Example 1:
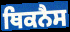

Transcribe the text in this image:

ਥਿਕਨੈਸ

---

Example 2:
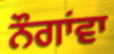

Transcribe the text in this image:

ਨੌਗਾਂਵਾ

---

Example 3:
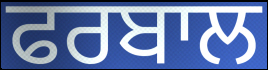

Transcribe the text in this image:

ਫਰਬਾਲ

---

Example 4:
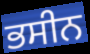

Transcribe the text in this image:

ਭਸੀਨ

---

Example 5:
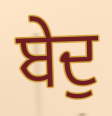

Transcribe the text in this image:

ਬੇਦੁ